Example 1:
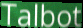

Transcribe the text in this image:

Talbot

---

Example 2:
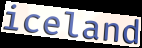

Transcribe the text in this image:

iceland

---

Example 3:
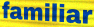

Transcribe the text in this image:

familiar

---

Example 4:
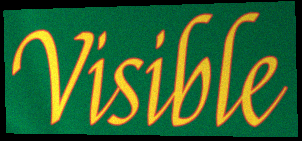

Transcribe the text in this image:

Visible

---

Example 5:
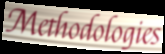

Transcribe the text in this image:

Methodologies